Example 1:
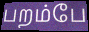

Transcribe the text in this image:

பறம்பே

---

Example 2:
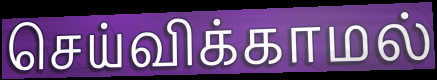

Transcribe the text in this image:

செய்விக்காமல்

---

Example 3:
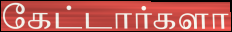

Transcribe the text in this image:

கேட்டார்களா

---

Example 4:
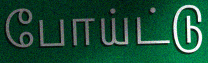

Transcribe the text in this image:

போய்ட்டு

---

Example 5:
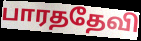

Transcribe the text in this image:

பாரததேவி